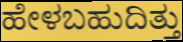
ಹೇಳಬಹುದಿತ್ತು